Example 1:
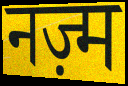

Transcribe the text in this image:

नज़्म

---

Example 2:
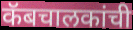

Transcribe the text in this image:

कॅबचालकांची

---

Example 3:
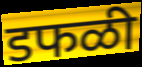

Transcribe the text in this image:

डफळी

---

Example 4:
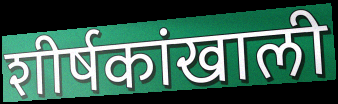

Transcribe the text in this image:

शीर्षकांखाली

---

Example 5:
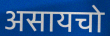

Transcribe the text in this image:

असायचो